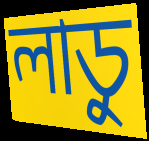
লাডু